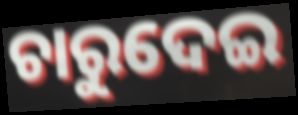
ଚାରୁଦେଇ